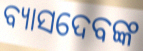
ବ୍ୟାସଦେବଙ୍କ